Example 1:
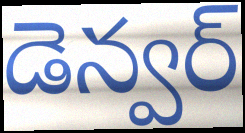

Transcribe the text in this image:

డెన్వర్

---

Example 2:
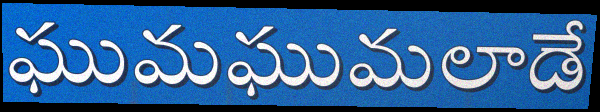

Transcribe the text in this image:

ఘుమఘుమలాడే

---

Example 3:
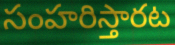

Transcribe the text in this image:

సంహరిస్తారట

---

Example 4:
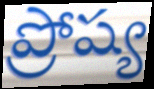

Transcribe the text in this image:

ప్రోష్య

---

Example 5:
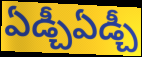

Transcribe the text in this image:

ఏడ్చీఏడ్చీ